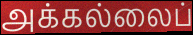
அக்கல்லைப்